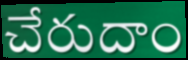
చేరుదాం